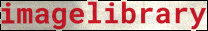
imagelibrary